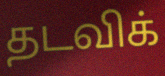
தடவிக்